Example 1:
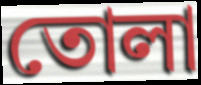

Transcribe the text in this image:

তোলা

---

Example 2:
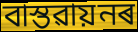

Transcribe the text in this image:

বাস্তৱায়নৰ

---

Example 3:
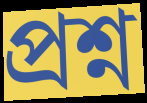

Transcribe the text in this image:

প্ৰশ্ন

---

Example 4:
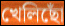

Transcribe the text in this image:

খেলিছোঁ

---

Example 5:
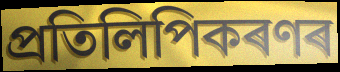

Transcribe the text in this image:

প্ৰতিলিপিকৰণৰ